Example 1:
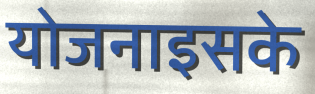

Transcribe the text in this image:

योजनाइसके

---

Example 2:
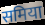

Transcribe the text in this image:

समिया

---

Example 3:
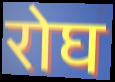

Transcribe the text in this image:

रोघ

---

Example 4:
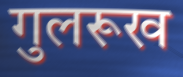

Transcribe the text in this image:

गुलरूख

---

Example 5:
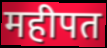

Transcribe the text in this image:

महीपत